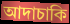
আদাচাকি